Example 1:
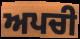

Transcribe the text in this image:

ਅਪਚੀ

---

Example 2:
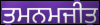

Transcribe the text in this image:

ਤਮਨਮਜੀਤ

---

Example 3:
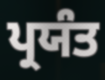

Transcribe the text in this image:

ਪ੍ਰਯੰਤ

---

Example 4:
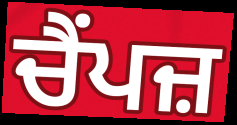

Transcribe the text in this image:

ਚੈਂਪਜ਼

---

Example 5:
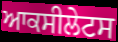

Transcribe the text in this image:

ਆਕਸੀਲੇਟਸ